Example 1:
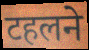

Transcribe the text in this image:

टहलने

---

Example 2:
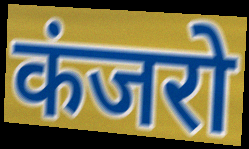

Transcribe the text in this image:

कंजरो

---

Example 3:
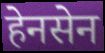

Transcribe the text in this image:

हेनसेन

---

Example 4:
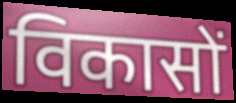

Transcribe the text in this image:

विकासों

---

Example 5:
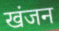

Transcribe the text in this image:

खंजन